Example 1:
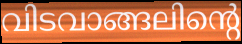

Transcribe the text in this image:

വിടവാങ്ങലിന്റെ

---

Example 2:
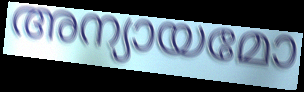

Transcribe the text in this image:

അന്യായമോ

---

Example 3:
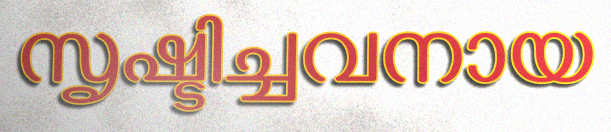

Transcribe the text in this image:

സൃഷ്ടിച്ചവനായ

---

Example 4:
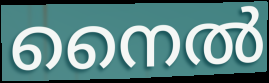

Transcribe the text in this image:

നൈൽ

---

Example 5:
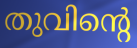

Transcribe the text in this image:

തുവിന്റെ